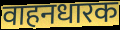
वाहनधारक